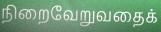
நிறைவேறுவதைக்